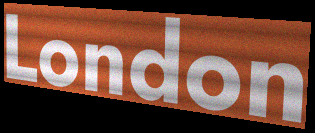
London